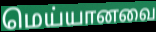
மெய்யானவை